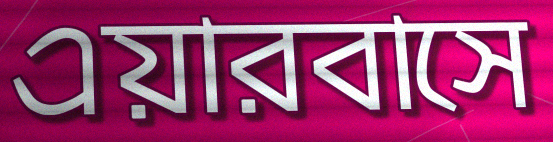
এয়ারবাসে